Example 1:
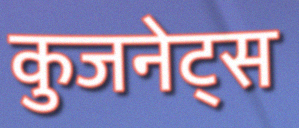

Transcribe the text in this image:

कुजनेट्स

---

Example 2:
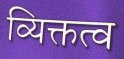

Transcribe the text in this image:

व्यिक्तत्व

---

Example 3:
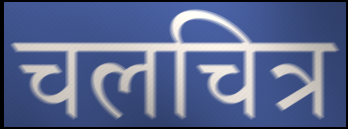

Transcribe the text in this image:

चलचित्र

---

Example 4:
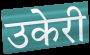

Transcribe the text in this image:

उकेरी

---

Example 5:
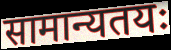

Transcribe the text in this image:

सामान्यतयः